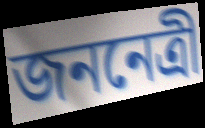
জননেত্রী